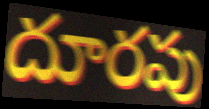
దూరపు